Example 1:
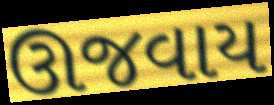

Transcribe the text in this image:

ઊજવાય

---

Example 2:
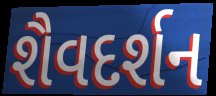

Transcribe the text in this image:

શૈવદર્શન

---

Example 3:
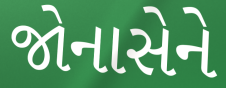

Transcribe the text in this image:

જોનાસેને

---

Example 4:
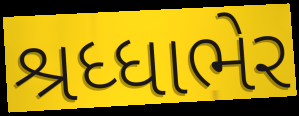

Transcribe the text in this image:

શ્રધ્ધાભેર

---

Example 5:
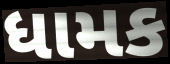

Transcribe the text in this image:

ધામક